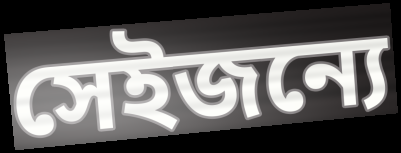
সেইজন্যে